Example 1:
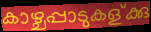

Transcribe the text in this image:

കാഴ്ചപ്പാടുകള്ക്കു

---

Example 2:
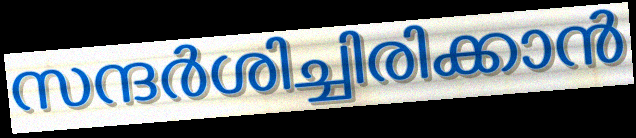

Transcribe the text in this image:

സന്ദർശിച്ചിരിക്കാൻ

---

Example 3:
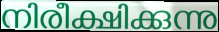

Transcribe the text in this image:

നിരീക്ഷിക്കുന്നു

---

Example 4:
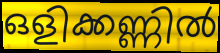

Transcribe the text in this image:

ഒളിക്കണ്ണിൽ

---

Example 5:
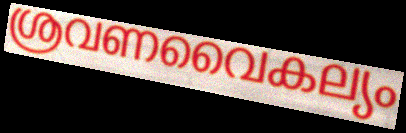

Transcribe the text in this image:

ശ്രവണവൈകല്യം